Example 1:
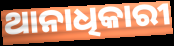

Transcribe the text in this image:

ଥାନାଧିକାରୀ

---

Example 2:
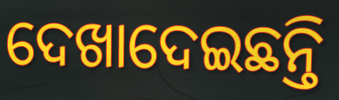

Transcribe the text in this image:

ଦେଖାଦେଇଛନ୍ତି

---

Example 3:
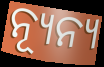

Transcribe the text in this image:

ନ୍ୟୂନ୍ୟ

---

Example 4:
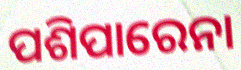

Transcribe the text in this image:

ପଶିପାରେନା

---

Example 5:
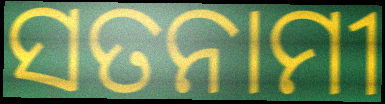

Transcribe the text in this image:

ସତନାମୀ